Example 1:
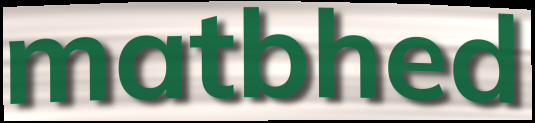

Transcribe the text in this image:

matbhed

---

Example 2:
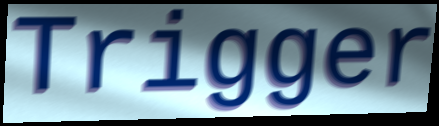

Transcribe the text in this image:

Trigger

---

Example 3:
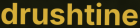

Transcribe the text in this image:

drushtine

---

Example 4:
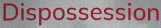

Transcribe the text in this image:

Dispossession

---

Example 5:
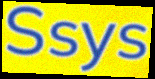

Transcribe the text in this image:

Ssys